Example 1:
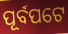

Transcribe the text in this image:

ପୂର୍ବପଟେ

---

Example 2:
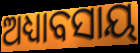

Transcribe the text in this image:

ଅଧ୍ୟାବସାୟ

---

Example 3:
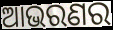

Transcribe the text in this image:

ଆଭରଣର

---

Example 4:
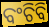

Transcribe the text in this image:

ବଂଚିବି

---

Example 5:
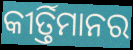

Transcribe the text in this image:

କୀର୍ତ୍ତିମାନର